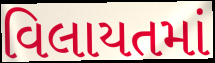
વિલાયતમાં